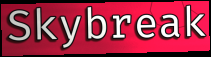
Skybreak